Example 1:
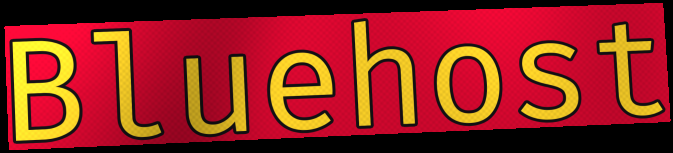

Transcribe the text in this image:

Bluehost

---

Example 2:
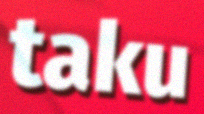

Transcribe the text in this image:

taku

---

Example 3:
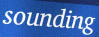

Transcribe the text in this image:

sounding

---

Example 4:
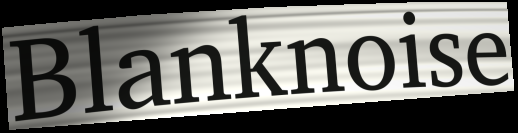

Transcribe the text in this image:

Blanknoise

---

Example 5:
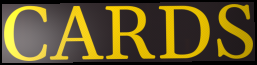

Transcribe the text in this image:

CARDS